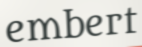
embert